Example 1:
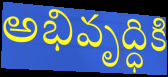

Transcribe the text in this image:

అభివృద్ధికి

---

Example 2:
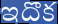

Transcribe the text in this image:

ఇదొక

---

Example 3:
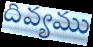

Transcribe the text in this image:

దివ్యము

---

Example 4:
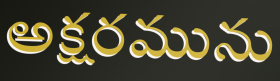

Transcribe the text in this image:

అక్షరమును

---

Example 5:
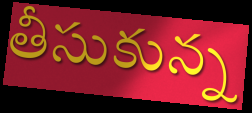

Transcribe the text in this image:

తీసుకున్న